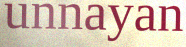
unnayan